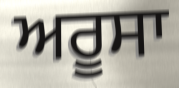
ਅਰੂਸਾ